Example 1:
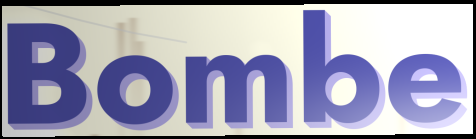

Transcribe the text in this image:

Bombe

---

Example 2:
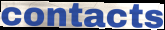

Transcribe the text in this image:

contacts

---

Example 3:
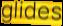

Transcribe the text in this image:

glides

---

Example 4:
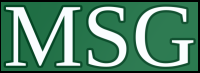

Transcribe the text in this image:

MSG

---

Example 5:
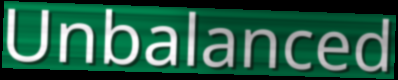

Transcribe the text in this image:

Unbalanced